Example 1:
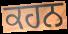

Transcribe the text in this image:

ਕਹਨ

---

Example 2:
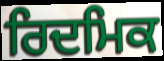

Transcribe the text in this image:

ਰਿਦਮਿਕ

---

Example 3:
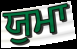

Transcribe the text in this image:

ਯੁਮਾ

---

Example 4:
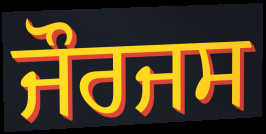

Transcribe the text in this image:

ਜੌਰਜਸ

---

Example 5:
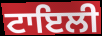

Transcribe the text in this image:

ਟਾਇਲੀ